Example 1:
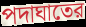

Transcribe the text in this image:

পদাঘাতের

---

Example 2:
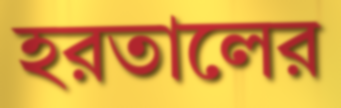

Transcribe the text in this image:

হরতালের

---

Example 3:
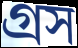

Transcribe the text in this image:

গ্রস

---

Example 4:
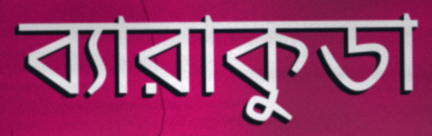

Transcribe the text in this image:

ব্যারাকুডা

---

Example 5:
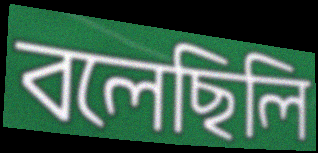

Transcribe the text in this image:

বলেছিলি